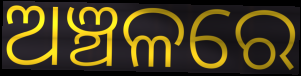
ଅଞ୍ଚଳରେ